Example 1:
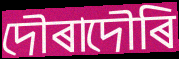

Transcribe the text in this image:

দৌৰাদৌৰি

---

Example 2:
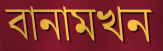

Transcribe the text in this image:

বানামখন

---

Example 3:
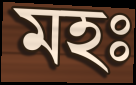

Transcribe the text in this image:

মহঃ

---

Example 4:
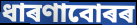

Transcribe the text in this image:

ধাৰণাবোৰৰ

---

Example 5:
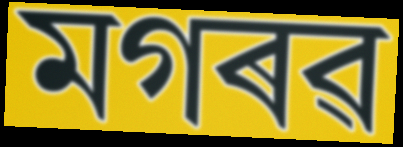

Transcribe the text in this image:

মগৰৱ